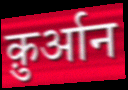
क़ुर्आन